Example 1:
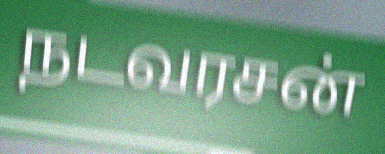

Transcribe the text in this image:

நடவரசன்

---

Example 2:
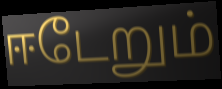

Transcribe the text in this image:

ஈடேறும்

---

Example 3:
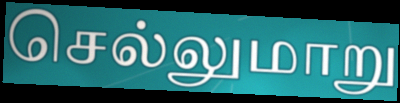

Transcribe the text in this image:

செல்லுமாறு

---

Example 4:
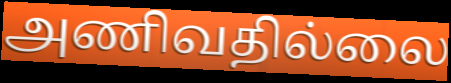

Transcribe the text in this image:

அணிவதில்லை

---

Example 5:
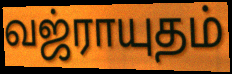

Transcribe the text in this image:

வஜ்ராயுதம்